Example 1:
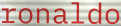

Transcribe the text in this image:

ronaldo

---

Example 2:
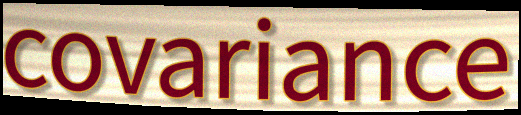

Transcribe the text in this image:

covariance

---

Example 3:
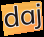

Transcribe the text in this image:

daj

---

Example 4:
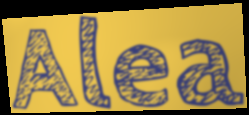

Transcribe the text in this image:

Alea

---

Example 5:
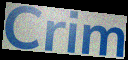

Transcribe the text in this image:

Crim